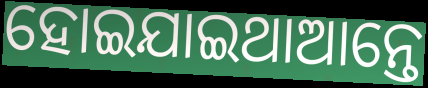
ହୋଇଯାଇଥାଆନ୍ତେ